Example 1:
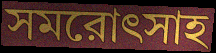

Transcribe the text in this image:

সমরোৎসাহ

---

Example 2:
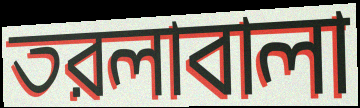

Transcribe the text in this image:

তরলাবালা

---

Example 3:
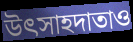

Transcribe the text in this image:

উৎসাহদাতাও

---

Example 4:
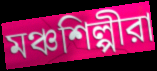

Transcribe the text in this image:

মঞ্চশিল্পীরা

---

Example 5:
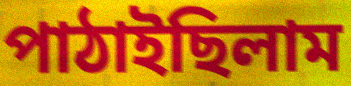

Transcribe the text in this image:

পাঠাইছিলাম